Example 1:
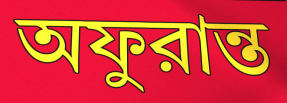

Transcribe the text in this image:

অফুরান্ত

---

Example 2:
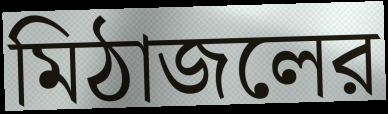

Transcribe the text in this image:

মিঠাজলের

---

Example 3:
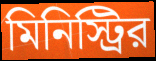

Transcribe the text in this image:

মিনিস্ট্রির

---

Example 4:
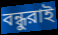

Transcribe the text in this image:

বন্ধুরাই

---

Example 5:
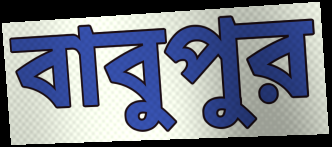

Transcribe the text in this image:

বাবুপুর